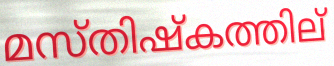
മസ്തിഷ്കത്തില്